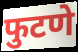
फुटणे